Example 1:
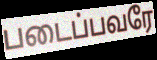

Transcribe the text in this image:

படைப்பவரே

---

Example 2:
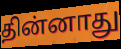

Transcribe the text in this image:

தின்னாது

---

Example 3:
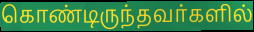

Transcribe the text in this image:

கொண்டிருந்தவர்களில்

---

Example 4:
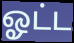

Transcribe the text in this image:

ஓட்ட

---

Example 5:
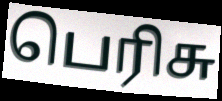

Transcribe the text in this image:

பெரிசு